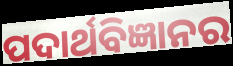
ପଦାର୍ଥବିଜ୍ଞାନର